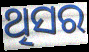
ଥିସର